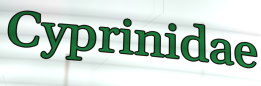
Cyprinidae